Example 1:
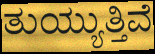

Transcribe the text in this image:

ತುಯ್ಯುತ್ತಿವೆ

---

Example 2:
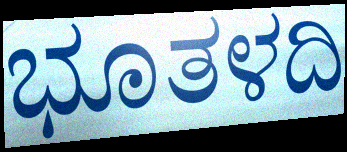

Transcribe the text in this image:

ಭೂತಳದಿ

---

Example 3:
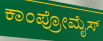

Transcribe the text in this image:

ಕಾಂಪ್ರೋಮೈಸ್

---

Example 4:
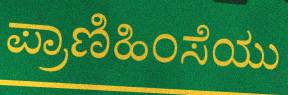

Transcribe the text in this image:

ಪ್ರಾಣಿಹಿಂಸೆಯು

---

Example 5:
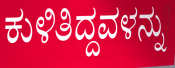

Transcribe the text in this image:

ಕುಳಿತಿದ್ದವಳನ್ನು